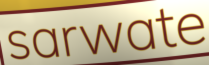
sarwate